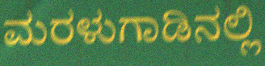
ಮರಳುಗಾಡಿನಲ್ಲಿ